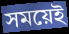
সময়েই